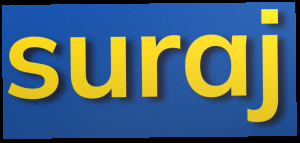
suraj